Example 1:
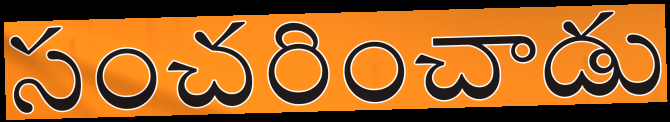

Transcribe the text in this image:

సంచరించాడు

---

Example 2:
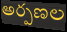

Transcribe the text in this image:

అర్పణల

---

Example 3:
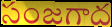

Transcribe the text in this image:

సంజగాద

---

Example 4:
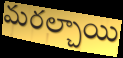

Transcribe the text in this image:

మరల్చాయి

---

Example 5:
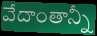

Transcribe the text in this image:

వేదాంతాన్నీ